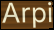
Arpi